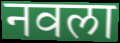
नवला